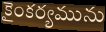
కైంకర్యమును